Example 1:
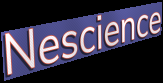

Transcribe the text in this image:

Nescience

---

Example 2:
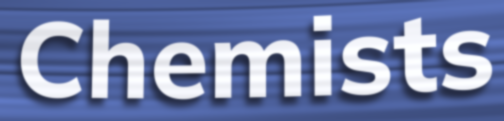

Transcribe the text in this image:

Chemists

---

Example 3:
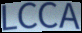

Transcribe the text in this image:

LCCA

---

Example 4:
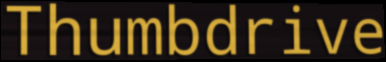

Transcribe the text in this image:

Thumbdrive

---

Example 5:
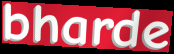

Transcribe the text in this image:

bharde